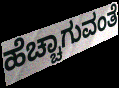
ಹೆಚ್ಚಾಗುವಂತೆ